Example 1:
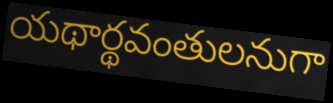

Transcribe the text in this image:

యథార్థవంతులనుగా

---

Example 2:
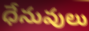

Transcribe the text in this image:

ధేనువులు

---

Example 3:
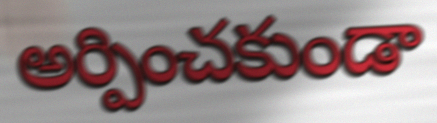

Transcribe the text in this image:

అర్పించకుండా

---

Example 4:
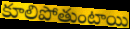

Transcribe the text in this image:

కూలిపోతుంటాయి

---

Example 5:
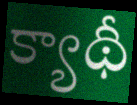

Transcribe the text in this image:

క్యాథీ